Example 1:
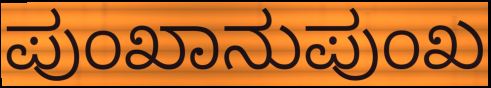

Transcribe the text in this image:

ಪುಂಖಾನುಪುಂಖ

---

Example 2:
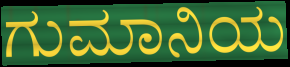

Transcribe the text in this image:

ಗುಮಾನಿಯ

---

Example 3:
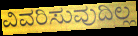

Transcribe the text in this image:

ವಿವರಿಸುವುದಿಲ್ಲ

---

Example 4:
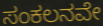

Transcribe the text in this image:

ಸಂಕಲನವೇ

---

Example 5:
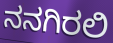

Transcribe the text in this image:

ನನಗಿರಲಿ